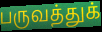
பருவத்துக்